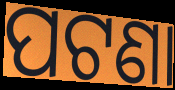
ପଟଣା